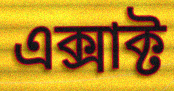
এক্সাক্ট